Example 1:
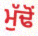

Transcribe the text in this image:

ਮੁੱਢੋਂ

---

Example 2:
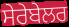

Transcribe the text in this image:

ਸੇਰੇਬੇਲਰ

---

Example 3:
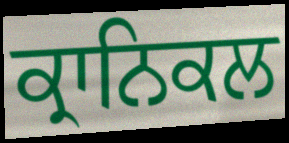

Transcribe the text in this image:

ਕ੍ਰਾਨਿਕਲ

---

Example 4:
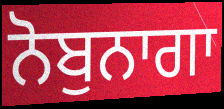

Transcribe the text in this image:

ਨੋਬੁਨਾਗਾ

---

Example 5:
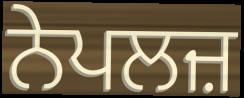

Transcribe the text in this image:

ਨੇਪਲਜ਼